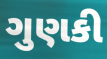
ગુણકી